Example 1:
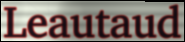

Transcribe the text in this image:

Leautaud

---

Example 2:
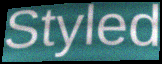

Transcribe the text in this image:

Styled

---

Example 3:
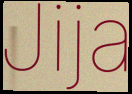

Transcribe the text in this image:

Jija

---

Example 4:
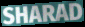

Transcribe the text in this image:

SHARAD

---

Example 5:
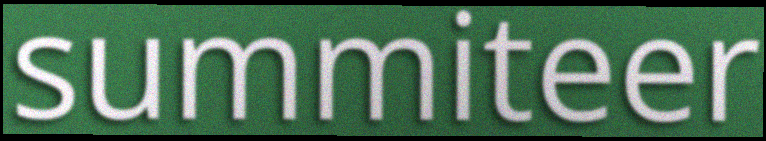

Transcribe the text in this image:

summiteer